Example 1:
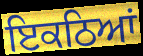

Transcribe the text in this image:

ਇਕਠਿਆਂ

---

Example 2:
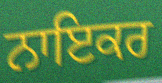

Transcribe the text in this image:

ਨਾਇਕਰ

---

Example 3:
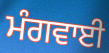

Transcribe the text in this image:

ਮੰਗਵਾਈ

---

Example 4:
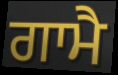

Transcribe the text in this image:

ਗਾਮੈ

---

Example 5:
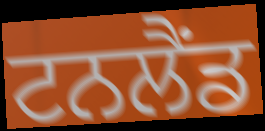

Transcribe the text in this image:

ਟਨਲੈਂਡ